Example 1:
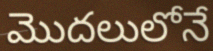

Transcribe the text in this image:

మొదలులోనే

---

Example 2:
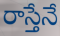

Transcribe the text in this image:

రాస్తేనే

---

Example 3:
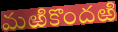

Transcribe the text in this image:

మఱికొందఱి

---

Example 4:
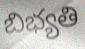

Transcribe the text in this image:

బిభ్యతి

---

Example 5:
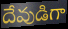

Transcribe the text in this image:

దేవుడిగా